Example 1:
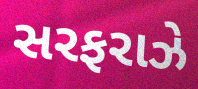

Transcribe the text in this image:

સરફરાઝે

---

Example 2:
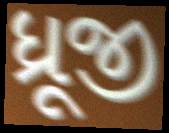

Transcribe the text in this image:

ધ્રૂજી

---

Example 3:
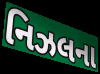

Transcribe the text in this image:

નિઝલના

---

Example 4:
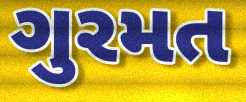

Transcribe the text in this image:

ગુરમત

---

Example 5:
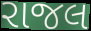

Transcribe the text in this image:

રાજલ